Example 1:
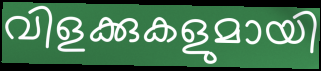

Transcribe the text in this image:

വിളക്കുകളുമായി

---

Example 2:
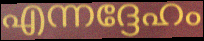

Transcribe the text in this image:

എന്നദ്ദേഹം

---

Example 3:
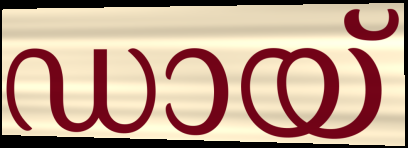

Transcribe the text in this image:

ഡായ്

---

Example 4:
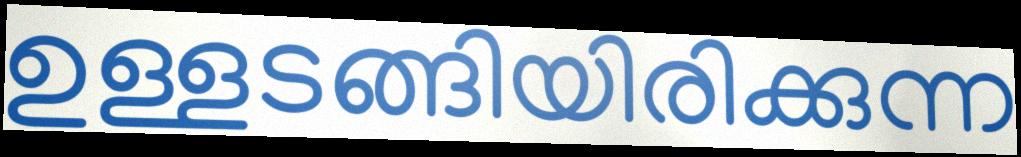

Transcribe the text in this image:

ഉള്ളടങ്ങിയിരിക്കുന്ന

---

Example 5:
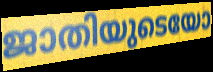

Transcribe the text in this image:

ജാതിയുടെയോ